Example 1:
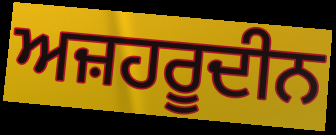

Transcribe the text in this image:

ਅਜ਼ਹਰੂਦੀਨ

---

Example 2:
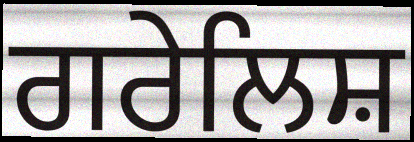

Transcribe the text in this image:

ਗਰੇਲਿਸ਼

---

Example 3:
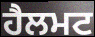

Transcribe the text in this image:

ਹੈਲਮਟ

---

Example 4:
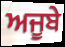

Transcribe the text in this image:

ਅਜੂਬੇ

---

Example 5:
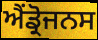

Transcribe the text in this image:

ਐਂਡ੍ਰੋਜਨਸ